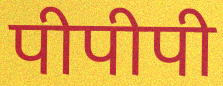
पीपीपी